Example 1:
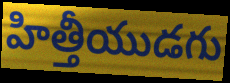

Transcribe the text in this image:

హిత్తీయుడగు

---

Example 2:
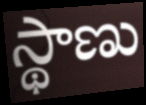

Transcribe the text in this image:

స్థాణు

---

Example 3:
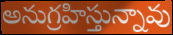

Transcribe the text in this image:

అనుగ్రహిస్తున్నావు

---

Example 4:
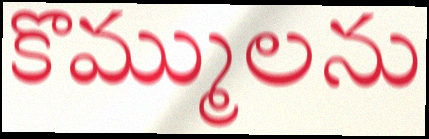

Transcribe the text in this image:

కొమ్ములను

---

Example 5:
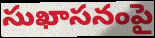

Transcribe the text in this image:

సుఖాసనంపై